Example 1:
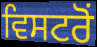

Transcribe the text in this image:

ਵਿਸਟਰੋਂ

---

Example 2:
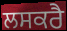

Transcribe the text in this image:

ਲਸਕਰੈ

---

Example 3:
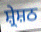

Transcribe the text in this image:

ਸ਼੍ਰੇਸ਼ਠ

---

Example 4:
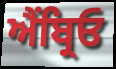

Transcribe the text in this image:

ਐਂਬ੍ਰਿਓ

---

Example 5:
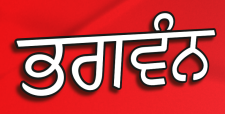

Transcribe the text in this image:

ਭਗਵੰਨ